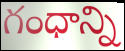
గంధాన్ని